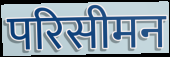
परिसीमन